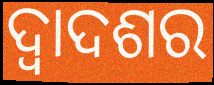
ଦ୍ୱାଦଶର